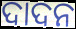
ଦାଦନ